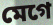
মেগে